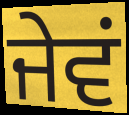
ਜੇਵਂ